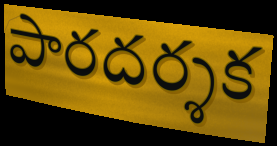
పారదర్శక